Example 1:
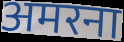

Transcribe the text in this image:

अमरना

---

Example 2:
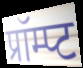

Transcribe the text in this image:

प्रॉम्प्ट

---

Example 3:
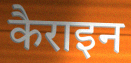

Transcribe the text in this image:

कैराइन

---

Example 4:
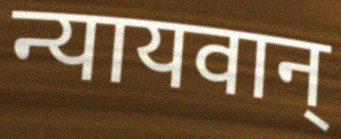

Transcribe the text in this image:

न्यायवान्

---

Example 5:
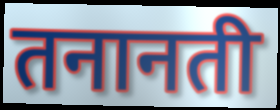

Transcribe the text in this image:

तनानती